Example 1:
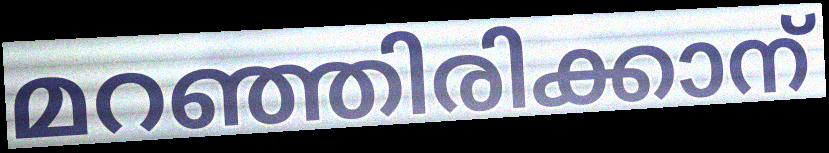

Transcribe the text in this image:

മറഞ്ഞിരിക്കാന്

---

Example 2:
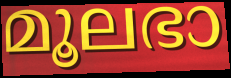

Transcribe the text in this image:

മൂലഭാ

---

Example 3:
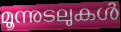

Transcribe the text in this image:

മൂന്നുടലുകൾ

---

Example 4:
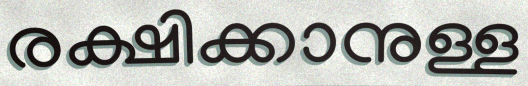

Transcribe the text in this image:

രക്ഷിക്കാനുള്ള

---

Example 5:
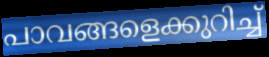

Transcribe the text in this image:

പാവങ്ങളെക്കുറിച്ച്